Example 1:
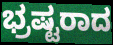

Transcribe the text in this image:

ಭ್ರಷ್ಟರಾದ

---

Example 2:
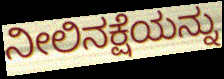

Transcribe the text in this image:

ನೀಲಿನಕ್ಷೆಯನ್ನು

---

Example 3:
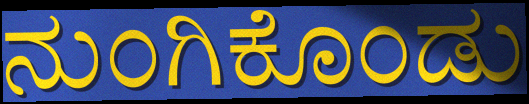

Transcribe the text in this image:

ನುಂಗಿಕೊಂಡು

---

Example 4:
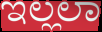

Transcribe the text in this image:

ಇಲ್ಲಲಾ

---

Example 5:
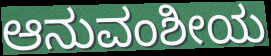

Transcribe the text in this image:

ಆನುವಂಶೀಯ